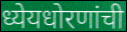
ध्येयधोरणांची